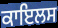
ਕਾਇਲਸ